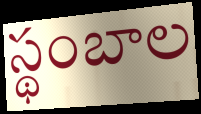
స్థంబాల